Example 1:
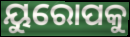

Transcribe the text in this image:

ୟୁରୋପକୁ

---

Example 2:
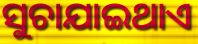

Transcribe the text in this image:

ସୁଚାଯାଇଥାଏ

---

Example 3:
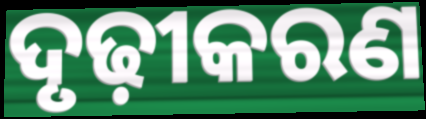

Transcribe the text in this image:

ଦୃଢ଼ୀକରଣ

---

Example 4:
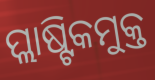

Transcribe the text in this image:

ପ୍ଲାଷ୍ଟିକମୁକ୍ତ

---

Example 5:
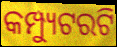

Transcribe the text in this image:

କମ୍ପ୍ୟୁଟରଟି